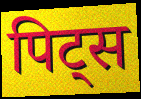
पिट्स